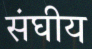
संघीय